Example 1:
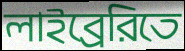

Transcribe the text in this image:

লাইব্রেরিতে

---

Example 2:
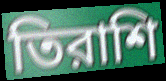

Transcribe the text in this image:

তিরাশি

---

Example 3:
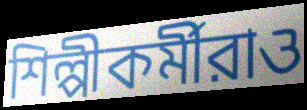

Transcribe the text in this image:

শিল্পীকর্মীরাও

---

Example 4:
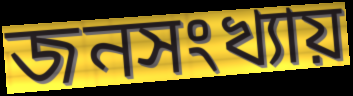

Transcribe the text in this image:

জনসংখ্যায়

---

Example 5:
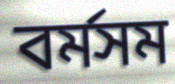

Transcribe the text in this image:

বর্মসম